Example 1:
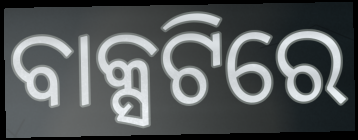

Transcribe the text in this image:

ବାକ୍ସଟିରେ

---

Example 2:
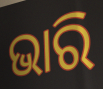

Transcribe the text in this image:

ଭାରି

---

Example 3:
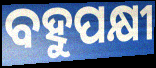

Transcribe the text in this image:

ବହୁପକ୍ଷୀ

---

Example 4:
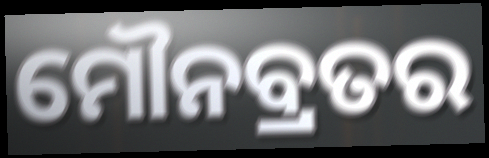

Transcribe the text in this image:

ମୌନବ୍ରତର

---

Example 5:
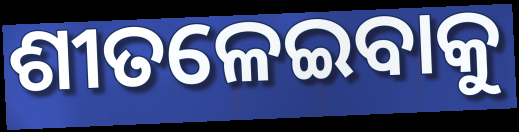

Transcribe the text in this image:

ଶୀତଳେଇବାକୁ